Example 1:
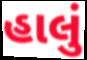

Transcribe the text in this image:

હાલું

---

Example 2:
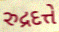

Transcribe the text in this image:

રુદ્રદત્તે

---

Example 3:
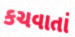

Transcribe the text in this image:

કચવાતાં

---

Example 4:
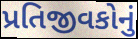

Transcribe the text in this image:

પ્રતિજીવકોનું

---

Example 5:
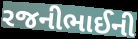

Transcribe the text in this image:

રજનીભાઈની